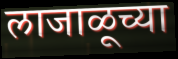
लाजाळूच्या